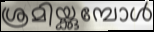
ശ്രമിയ്ക്കുമ്പോൾ